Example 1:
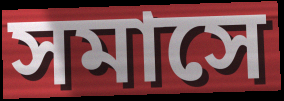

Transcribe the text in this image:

সমাসে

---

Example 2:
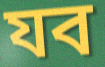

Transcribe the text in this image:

যব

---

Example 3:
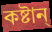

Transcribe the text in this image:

কষ্টান্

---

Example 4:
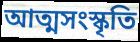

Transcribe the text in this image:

আত্মসংস্কৃতি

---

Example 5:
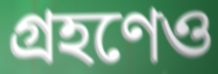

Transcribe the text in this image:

গ্রহণেও